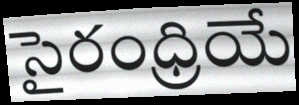
సైరంధ్రియే